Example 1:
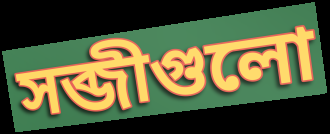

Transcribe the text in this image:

সব্জীগুলো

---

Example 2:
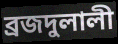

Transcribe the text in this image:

ব্রজদুলালী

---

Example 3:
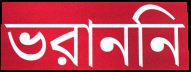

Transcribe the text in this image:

ভরাননি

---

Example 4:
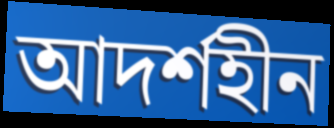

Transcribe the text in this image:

আদর্শহীন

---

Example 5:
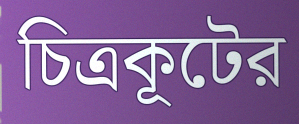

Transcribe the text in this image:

চিত্রকূটের